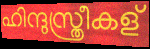
ഹിന്ദുസ്ത്രീകള്